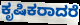
ಕೃಷಿಕರಾದರೆ